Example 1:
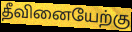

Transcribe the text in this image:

தீவினையேற்கு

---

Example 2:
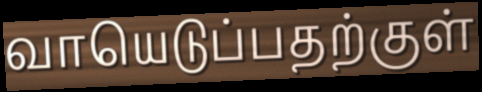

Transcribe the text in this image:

வாயெடுப்பதற்குள்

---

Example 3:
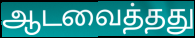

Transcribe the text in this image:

ஆடவைத்தது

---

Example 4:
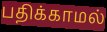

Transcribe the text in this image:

பதிக்காமல்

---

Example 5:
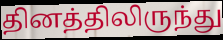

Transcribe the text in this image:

தினத்திலிருந்து